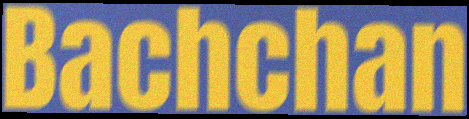
Bachchan